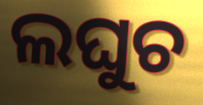
ଲଘୁଚ